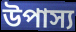
উপাস্য